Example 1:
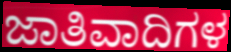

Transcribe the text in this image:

ಜಾತಿವಾದಿಗಳ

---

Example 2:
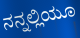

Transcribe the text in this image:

ನನ್ನಲ್ಲಿಯೂ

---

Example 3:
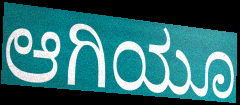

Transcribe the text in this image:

ಆಗಿಯೂ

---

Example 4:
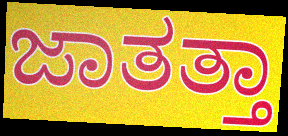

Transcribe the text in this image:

ಜಾತತ್ತಾ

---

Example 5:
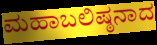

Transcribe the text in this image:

ಮಹಾಬಲಿಷ್ಠನಾದ